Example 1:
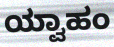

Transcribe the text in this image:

ಯ್ವಾಹಂ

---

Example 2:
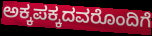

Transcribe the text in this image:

ಅಕ್ಕಪಕ್ಕದವರೊಂದಿಗೆ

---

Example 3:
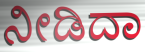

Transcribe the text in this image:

ನೀಡಿದಾ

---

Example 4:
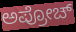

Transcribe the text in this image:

ಅಪ್ರೋಚ್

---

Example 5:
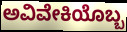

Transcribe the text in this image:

ಅವಿವೇಕಿಯೊಬ್ಬ